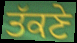
ਤੱਕਣੇ